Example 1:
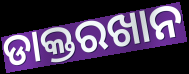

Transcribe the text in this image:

ଡାକ୍ତରଖାନ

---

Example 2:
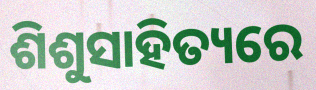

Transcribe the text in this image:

ଶିଶୁସାହିତ୍ୟରେ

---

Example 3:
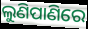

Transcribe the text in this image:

ଲୁଣିପାଣିରେ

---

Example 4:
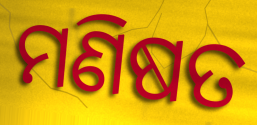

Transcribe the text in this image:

ମଣିଷତ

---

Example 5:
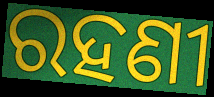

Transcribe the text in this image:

ରହଣୀ